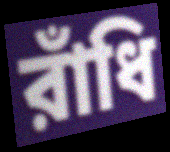
রাঁধি